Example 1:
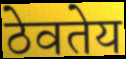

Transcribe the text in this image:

ठेवतेय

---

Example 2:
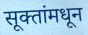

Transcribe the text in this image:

सूक्तांमधून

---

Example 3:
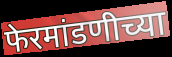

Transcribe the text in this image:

फेरमांडणीच्या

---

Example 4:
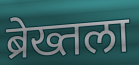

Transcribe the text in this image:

ब्रेख्तला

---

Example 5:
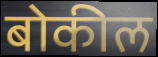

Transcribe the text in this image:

बोकील